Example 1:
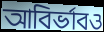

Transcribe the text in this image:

আবির্ভাবও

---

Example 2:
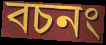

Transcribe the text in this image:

বচনং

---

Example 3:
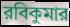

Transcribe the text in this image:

রবিকুমার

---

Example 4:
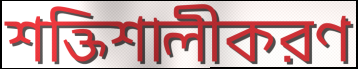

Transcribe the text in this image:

শক্তিশালীকরণ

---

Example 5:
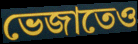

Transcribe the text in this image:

ভেজাতেও